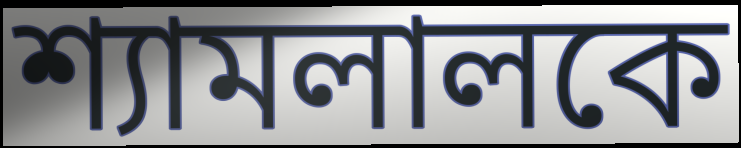
শ্যামলালকে